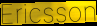
Ericsson